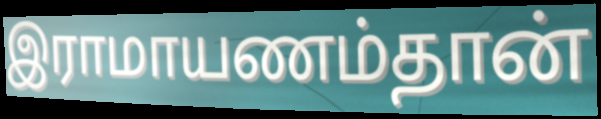
இராமாயணம்தான்